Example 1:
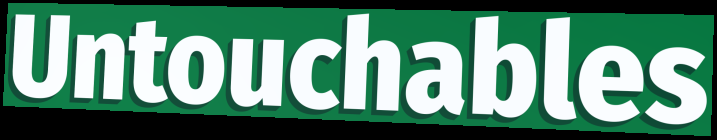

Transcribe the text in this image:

Untouchables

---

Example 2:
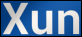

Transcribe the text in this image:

Xun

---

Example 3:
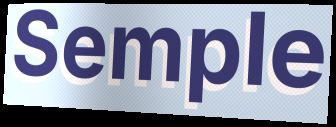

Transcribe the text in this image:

Semple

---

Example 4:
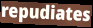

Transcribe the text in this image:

repudiates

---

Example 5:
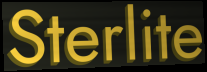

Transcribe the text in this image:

Sterlite